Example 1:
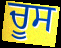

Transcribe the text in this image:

ਚੂਸ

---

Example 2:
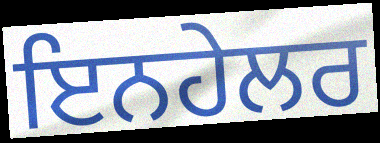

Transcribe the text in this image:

ਇਨਹੇਲਰ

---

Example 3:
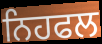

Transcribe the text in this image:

ਨਿਹਫਲ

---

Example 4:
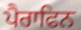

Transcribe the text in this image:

ਪੈਰਾਫਿਨ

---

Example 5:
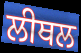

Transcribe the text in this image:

ਲੀਥਲ